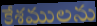
కేశములను